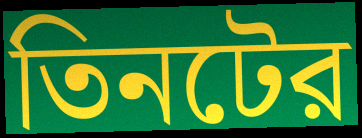
তিনটের